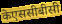
केएससीबीसी